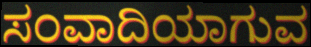
ಸಂವಾದಿಯಾಗುವ